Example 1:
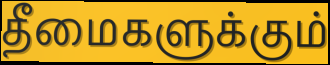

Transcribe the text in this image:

தீமைகளுக்கும்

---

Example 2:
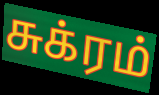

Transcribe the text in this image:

சுக்ரம்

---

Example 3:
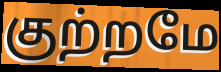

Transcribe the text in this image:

குற்றமே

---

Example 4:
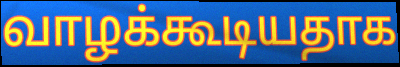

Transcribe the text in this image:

வாழக்கூடியதாக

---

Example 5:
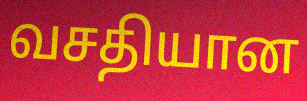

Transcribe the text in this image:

வசதியான